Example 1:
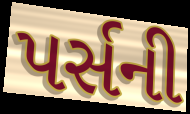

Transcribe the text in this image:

પર્સની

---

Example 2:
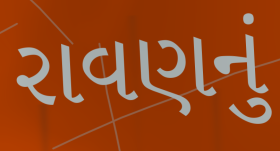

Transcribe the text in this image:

રાવણનું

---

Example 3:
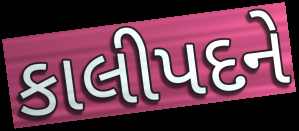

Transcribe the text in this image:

કાલીપદને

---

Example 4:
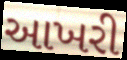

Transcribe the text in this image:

આખરી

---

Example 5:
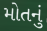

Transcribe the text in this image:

મોતનું